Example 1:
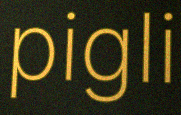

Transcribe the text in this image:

pigli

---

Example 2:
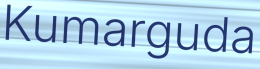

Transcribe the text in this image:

Kumarguda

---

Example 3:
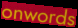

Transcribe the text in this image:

onwords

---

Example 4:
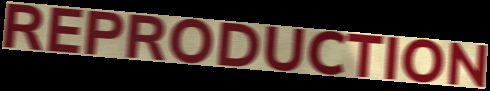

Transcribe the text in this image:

REPRODUCTION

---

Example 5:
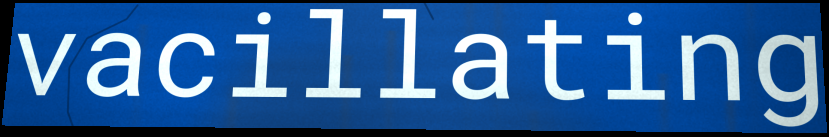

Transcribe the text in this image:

vacillating